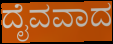
ದೈವವಾದ